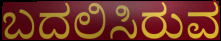
ಬದಲಿಸಿರುವ